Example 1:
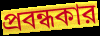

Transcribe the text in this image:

প্রবন্ধকার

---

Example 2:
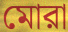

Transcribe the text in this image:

মোরা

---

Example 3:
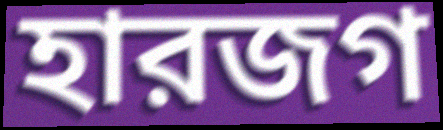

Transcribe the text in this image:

হারজগ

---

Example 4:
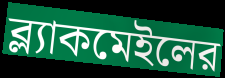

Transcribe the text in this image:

ব্ল্যাকমেইলের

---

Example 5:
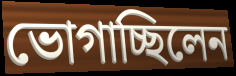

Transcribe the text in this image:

ভোগাচ্ছিলেন